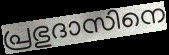
പ്രഭുദാസിനെ